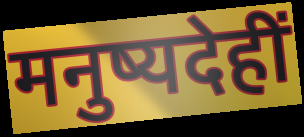
मनुष्यदेहीं